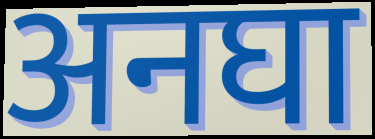
अनघा